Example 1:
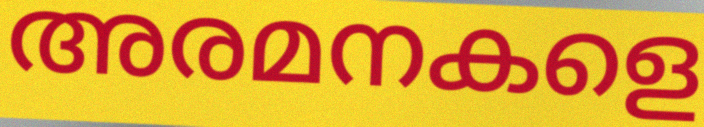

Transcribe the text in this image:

അരമനകളെ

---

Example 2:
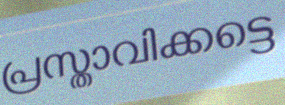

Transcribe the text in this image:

പ്രസ്താവിക്കട്ടെ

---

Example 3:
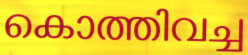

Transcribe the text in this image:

കൊത്തിവച്ച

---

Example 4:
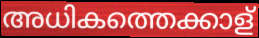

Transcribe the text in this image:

അധികത്തെക്കാള്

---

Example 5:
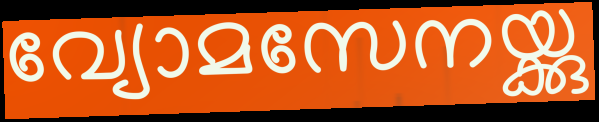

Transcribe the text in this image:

വ്യോമസേനയ്ക്കു